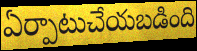
ఏర్పాటుచేయబడింది